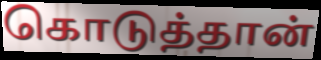
கொடுத்தான்